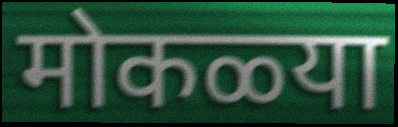
मोकळ्या